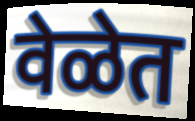
वेळेत